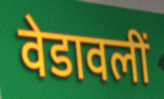
वेडावलीं